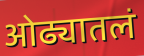
ओढ्यातलं